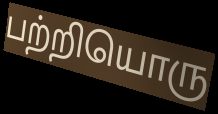
பற்றியொரு